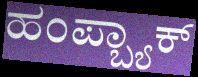
ಹಂಪ್ಬ್ಯಾಕ್